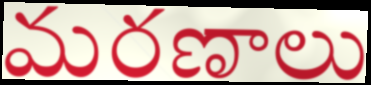
మరణాలు